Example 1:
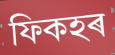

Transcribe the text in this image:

ফিকহৰ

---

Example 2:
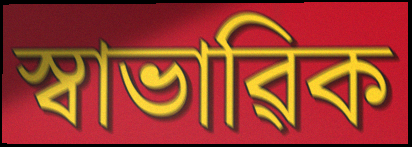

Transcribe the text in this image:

স্বাভাৱিক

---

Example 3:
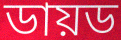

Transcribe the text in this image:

ডায়ড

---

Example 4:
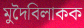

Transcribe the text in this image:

মুদৈবিলাকক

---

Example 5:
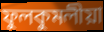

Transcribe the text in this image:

ফুলকুমলীয়া